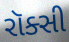
રૉક્સી